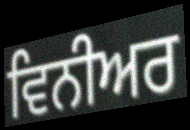
ਵਿਨੀਅਰ